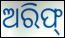
ଅରିଫ୍